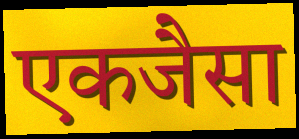
एकजैसा